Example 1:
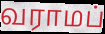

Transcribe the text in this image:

வராமப்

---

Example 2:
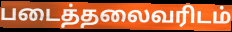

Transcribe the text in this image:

படைத்தலைவரிடம்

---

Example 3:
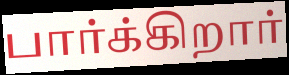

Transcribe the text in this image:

பார்க்கிறார்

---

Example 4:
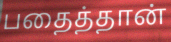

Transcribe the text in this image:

பதைத்தான்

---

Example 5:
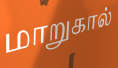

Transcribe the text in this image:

மாறுகால்